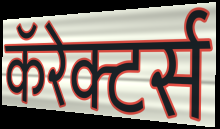
कॅरेक्टर्स